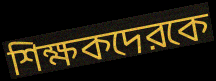
শিক্ষকদেরকে